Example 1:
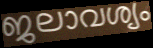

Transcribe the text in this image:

ജലാവശ്യം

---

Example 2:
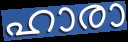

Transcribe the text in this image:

ഹാരാ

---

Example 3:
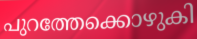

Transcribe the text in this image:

പുറത്തേക്കൊഴുകി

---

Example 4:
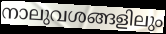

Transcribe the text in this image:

നാലുവശങ്ങളിലും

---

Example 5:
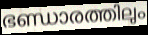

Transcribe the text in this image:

ഭണ്ഡാരത്തിലും